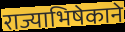
राज्याभिषेकाने